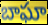
బాఘా